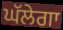
ਘੱਲੇਗਾ